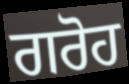
ਗਰੋਹ